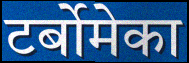
टर्बोमेका